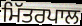
ਮਿੱਤਰਪਾਲ